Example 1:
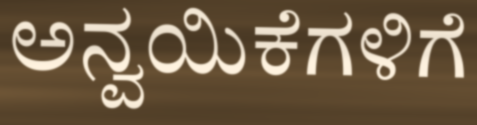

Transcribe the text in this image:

ಅನ್ವಯಿಕೆಗಳಿಗೆ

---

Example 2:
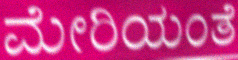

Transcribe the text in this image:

ಮೇರಿಯಂತೆ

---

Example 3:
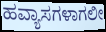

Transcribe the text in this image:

ಹವ್ಯಾಸಗಳಾಗಲೀ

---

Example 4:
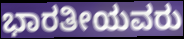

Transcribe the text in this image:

ಭಾರತೀಯವರು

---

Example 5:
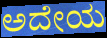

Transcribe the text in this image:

ಅದೇಯ